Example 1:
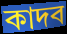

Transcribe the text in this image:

কাদব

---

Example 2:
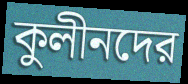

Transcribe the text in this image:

কুলীনদের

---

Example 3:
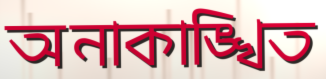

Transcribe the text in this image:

অনাকাঙ্খিত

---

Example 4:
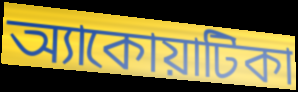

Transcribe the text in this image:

অ্যাকোয়াটিকা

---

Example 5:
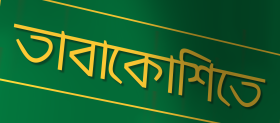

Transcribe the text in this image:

তাবাকোশিতে